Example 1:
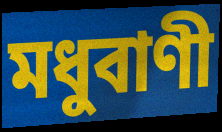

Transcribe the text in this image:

মধুবাণী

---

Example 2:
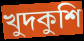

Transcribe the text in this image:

খুদকুশি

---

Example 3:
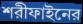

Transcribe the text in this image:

শরীফাইনের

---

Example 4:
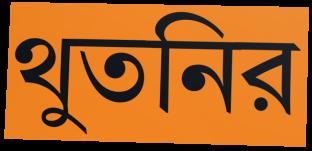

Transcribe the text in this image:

থুতনির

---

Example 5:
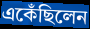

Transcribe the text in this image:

একেঁছিলেন